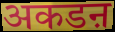
अकडऩ